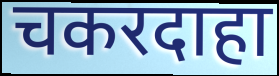
चकरदाहा